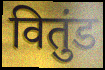
वितुंड